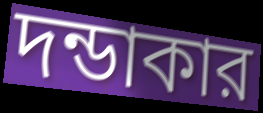
দন্ডাকার